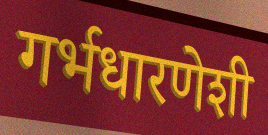
गर्भधारणेशी